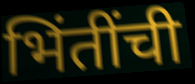
भिंतींची